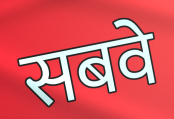
सबवे